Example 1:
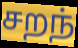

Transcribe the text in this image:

சறந்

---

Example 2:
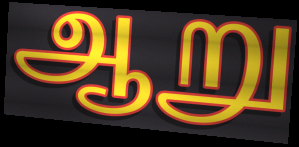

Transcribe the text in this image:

ஆறு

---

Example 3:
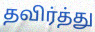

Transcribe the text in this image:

தவிர்த்து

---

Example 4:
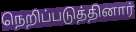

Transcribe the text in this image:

நெறிப்படுத்தினார்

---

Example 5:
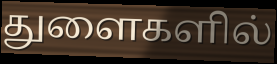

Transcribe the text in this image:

துளைகளில்